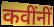
कवींनीं